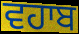
ਵਹਾਬ